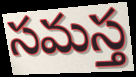
సమస్త